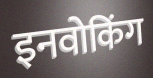
इनवोकिंग